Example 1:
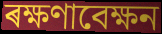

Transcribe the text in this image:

ৰক্ষণাবেক্ষন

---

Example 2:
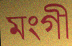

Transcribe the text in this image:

মংগী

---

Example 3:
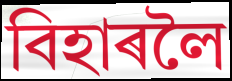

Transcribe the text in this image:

বিহাৰলৈ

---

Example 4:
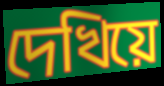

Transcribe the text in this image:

দেখিয়ে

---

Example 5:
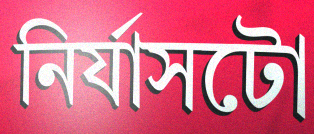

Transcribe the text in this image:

নিৰ্যাসটো